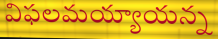
విఫలమయ్యాయన్న